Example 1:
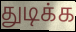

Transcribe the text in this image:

துடிக்க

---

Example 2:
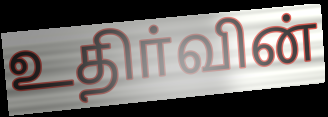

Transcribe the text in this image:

உதிர்வின்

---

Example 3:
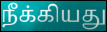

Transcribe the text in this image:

நீக்கியது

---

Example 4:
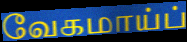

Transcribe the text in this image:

வேகமாய்ப்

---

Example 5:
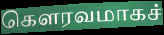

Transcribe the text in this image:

கௌரவமாகச்